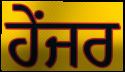
ਹੇਂਜਰ